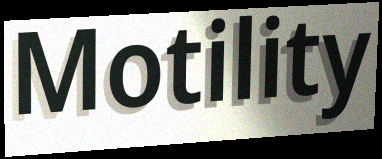
Motility